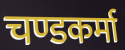
चण्डकर्मा